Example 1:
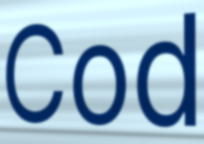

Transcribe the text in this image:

Cod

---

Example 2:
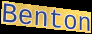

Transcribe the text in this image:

Benton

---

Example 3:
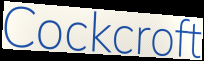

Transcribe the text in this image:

Cockcroft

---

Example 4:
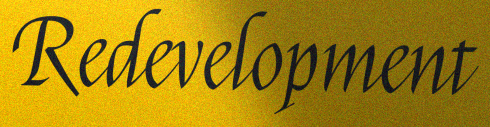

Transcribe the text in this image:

Redevelopment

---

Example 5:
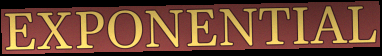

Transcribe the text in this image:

EXPONENTIAL